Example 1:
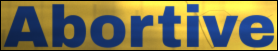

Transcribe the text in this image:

Abortive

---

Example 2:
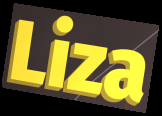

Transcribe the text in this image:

Liza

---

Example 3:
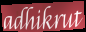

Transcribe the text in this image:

adhikrut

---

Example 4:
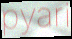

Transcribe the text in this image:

pyari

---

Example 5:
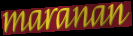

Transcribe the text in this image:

maranan